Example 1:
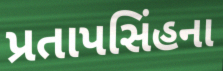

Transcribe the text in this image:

પ્રતાપસિંહના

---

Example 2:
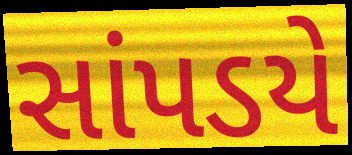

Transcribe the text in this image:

સાંપડયે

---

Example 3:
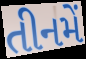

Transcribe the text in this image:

તીનમેં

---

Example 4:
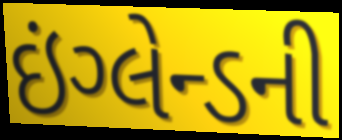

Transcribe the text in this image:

ઇંગ્લેન્ડની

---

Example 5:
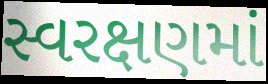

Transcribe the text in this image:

સ્વરક્ષણમાં